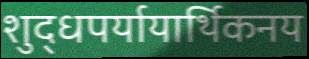
शुद्धपर्यायार्थिकनय